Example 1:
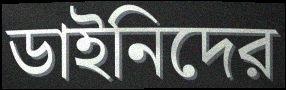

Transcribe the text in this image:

ডাইনিদের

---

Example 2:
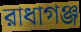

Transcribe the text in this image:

রাধাগঞ্জ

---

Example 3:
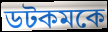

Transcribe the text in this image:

ডটকমকে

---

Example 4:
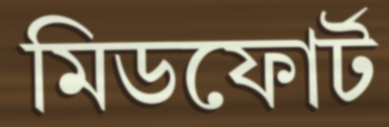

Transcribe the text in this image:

মিডফোর্ট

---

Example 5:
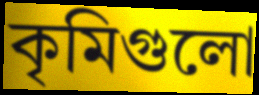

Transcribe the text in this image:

কৃমিগুলো